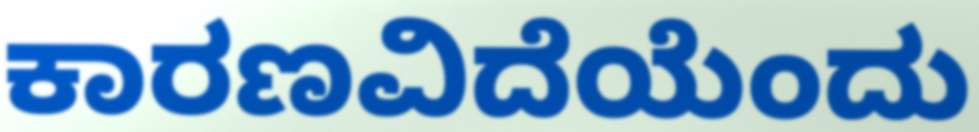
ಕಾರಣವಿದೆಯೆಂದು